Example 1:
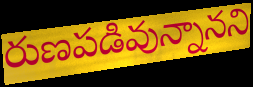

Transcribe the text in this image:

రుణపడివున్నానని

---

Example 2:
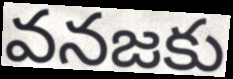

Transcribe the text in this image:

వనజకు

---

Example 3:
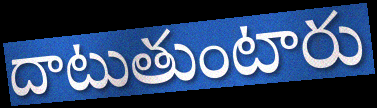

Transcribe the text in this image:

దాటుతుంటారు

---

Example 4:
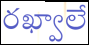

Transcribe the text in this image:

రఖ్వాలే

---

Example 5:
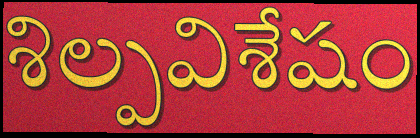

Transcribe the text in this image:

శిల్పవిశేషం